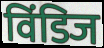
विंडिज